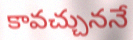
కావచ్చుననే